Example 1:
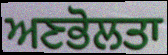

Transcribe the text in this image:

ਅਣਭੋਲਤਾ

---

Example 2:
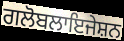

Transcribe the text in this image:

ਗਲੋਬਲਾਇਜੇਸ਼ਨ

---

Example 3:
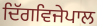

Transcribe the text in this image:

ਦਿੱਗਵਿਜੇਪਾਲ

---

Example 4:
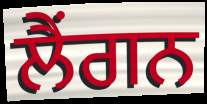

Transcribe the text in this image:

ਲੈਂਗਨ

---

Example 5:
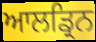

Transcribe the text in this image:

ਆਲਡ੍ਰਿਨ